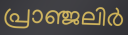
പ്രാഞ്ജലിർ